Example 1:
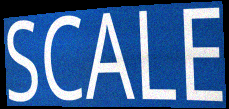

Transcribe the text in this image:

SCALE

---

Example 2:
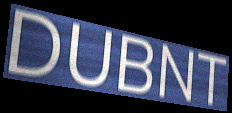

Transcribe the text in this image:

DUBNT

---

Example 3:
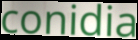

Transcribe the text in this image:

conidia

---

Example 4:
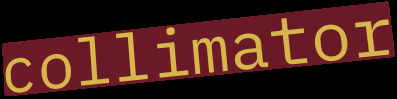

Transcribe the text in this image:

collimator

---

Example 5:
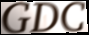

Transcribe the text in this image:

GDC